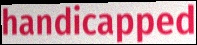
handicapped